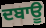
ਦਬਾਊ